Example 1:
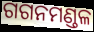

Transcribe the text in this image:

ଗଗନମଣ୍ଡଳ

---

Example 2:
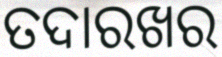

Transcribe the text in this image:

ତଦାରଖର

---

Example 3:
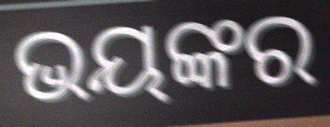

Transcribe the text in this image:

ଭୟଙ୍କର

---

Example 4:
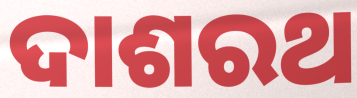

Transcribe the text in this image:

ଦାଶରଥ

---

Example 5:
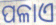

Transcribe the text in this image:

ପଳାଏ